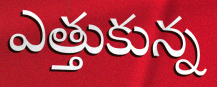
ఎత్తుకున్న